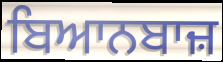
ਬਿਆਨਬਾਜ਼